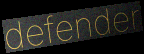
defender